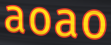
aoao